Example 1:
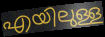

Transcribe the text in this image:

എയിലുള്ള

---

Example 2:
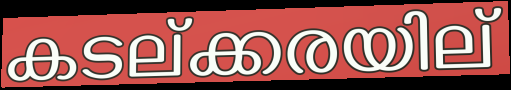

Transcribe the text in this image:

കടല്ക്കരയില്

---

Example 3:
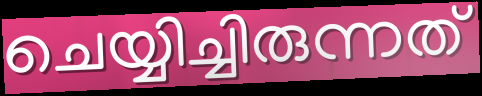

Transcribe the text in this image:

ചെയ്യിച്ചിരുന്നത്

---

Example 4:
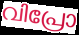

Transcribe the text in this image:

വിപ്രോ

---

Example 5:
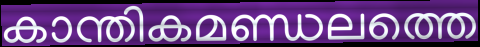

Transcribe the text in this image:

കാന്തികമണ്ഡലത്തെ